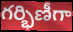
గర్భిణీగా